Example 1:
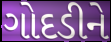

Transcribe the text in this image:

ગોદડીને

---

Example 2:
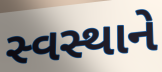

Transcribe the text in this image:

સ્વસ્થાને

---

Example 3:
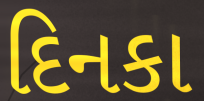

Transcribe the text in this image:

દિનકા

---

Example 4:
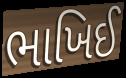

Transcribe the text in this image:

ભાખિઈ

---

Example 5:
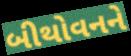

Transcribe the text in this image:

બીથોવનને